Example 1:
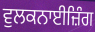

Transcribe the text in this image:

ਵੁਲਕਨਾਈਜ਼ਿੰਗ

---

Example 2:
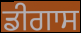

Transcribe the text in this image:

ਡੀਗਾਸ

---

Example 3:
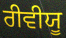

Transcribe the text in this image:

ਰੀਵੀਯੂ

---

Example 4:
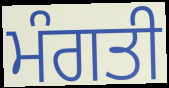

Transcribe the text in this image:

ਮੰਗਤੀ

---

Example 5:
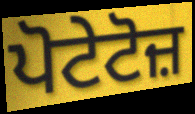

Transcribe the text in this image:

ਪੋਟੇਟੋਜ਼